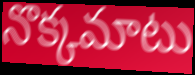
నొక్కమాటు